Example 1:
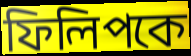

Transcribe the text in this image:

ফিলিপকে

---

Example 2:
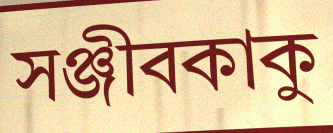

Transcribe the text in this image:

সঞ্জীবকাকু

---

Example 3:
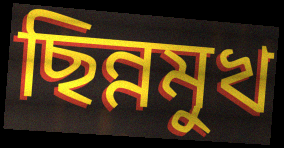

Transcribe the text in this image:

ছিন্নমুখ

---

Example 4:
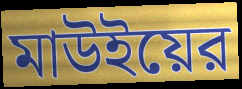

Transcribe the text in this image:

মাউইয়ের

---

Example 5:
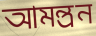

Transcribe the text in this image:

আমন্ত্রন